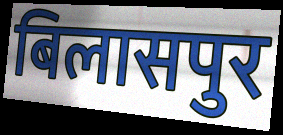
बिलासपुर